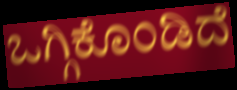
ಒಗ್ಗಿಕೊಂಡಿದೆ